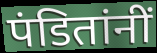
पंडितांनीं